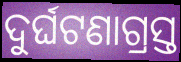
ଦୁର୍ଘଟଣାଗ୍ରସ୍ତ